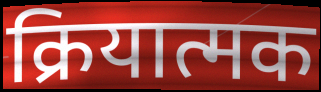
क्रियात्मक